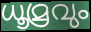
ധൂമ്രവും